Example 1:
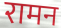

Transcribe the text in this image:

रामन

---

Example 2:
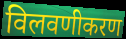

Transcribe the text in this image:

विलवणीकरण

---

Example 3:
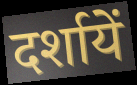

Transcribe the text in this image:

दर्शायें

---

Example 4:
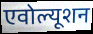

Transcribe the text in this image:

एवोल्यूशन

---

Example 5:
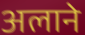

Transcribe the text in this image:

अलाने